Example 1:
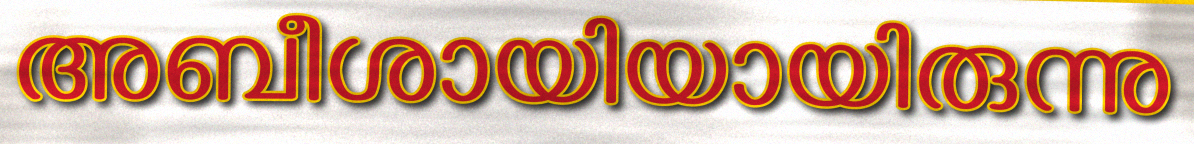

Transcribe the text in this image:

അബീശായിയായിരുന്നു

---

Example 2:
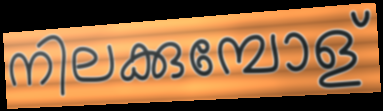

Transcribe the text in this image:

നിലക്കുമ്പോള്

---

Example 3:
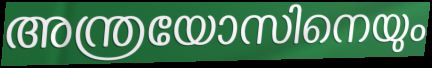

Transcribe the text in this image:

അന്ത്രയോസിനെയും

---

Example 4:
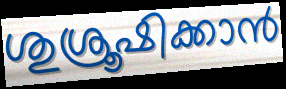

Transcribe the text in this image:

ശുശ്രൂഷിക്കാൻ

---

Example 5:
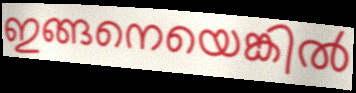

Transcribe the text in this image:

ഇങ്ങനെയെങ്കിൽ